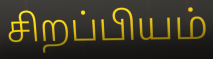
சிறப்பியம்